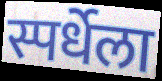
स्पर्धेला